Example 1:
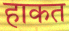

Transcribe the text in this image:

हाकत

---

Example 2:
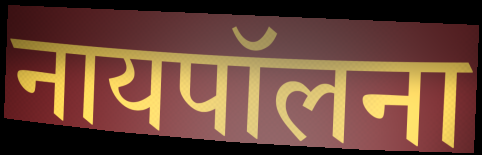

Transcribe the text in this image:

नायपॉलना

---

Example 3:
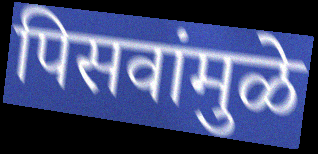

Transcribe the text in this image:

पिसवांमुळे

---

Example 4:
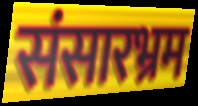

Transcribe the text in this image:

संसारभ्रम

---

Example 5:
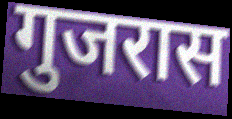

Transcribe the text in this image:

गुजरास